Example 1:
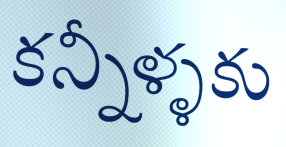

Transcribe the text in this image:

కన్నీళ్ళకు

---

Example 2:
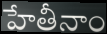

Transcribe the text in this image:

హేతీనాం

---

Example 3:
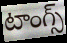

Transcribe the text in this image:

టాంగ్స్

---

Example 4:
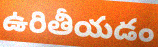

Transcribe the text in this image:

ఉరితీయడం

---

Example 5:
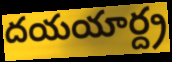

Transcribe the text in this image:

దయయార్ద్ర